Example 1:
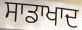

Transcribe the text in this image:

ਸਾਡਾਖਾਦ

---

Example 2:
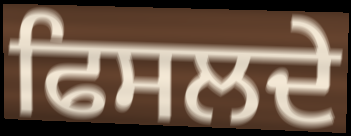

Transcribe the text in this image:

ਫਿਸਲਦੇ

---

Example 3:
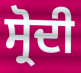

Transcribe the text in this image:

ਸ੍ਰੋਦੀ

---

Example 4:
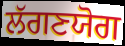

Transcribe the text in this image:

ਲੱਗਣਯੋਗ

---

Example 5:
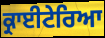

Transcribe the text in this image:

ਕ੍ਰਾਈਟੇਰਿਆ